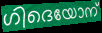
ഗിദെയോന്